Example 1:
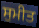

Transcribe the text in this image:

ਸੁਮੀਤ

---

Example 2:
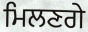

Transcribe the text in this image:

ਮਿਲਣਗੇ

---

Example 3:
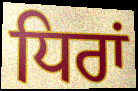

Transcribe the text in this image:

ਧਿਰਾਂ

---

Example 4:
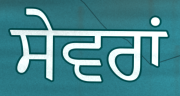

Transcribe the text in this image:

ਸੇਵਰਾਂ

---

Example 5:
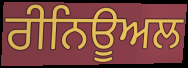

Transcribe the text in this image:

ਰੀਨਿਊਅਲ